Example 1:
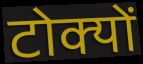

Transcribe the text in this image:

टोक्यों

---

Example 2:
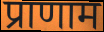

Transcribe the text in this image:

प्राणाम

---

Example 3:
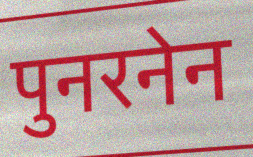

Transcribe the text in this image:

पुनरनेन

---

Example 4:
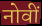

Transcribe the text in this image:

नोवीं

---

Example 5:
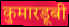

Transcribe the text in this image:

कुमारडूबी